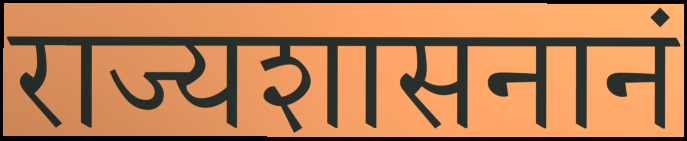
राज्यशासनानं